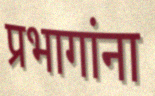
प्रभागांना